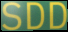
SDD